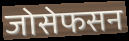
जोसेफसन